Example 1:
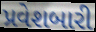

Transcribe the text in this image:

પ્રવેશબારી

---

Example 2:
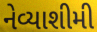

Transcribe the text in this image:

નેવ્યાશીમી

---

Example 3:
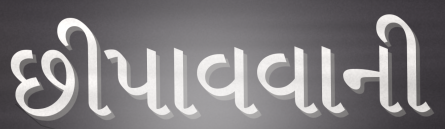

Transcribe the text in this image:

છીપાવવાની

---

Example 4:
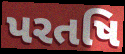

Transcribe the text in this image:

પરતષિ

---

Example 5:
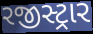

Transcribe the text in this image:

રજીસ્ટ્રાર